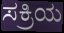
ಸಕ್ರಿಯ